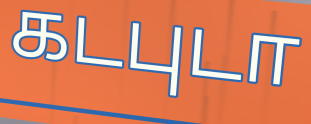
கடபுடா